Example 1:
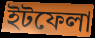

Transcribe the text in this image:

ইটফেলা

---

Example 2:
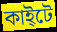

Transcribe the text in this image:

কাই্টে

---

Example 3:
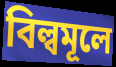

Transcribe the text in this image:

বিল্বমূলে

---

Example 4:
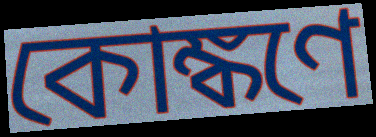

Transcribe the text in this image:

কোঙ্কণে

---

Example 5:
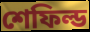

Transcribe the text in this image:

শেফিল্ড